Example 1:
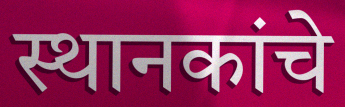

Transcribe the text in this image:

स्थानकांचे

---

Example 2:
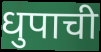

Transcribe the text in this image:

धुपाची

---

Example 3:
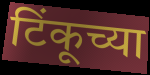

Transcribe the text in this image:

टिंकूच्या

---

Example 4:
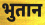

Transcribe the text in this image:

भुतान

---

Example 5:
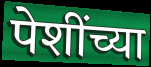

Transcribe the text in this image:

पेशींच्या